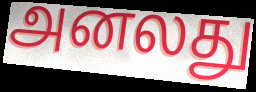
அனலது